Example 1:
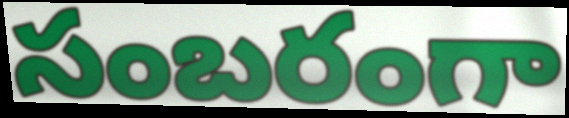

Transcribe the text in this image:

సంబరంగా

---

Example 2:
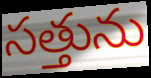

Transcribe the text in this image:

సత్తును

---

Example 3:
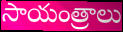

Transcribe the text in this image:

సాయంత్రాలు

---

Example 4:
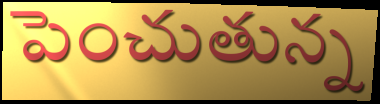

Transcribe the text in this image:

పెంచుతున్న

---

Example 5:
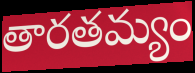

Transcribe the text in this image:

తారతమ్యం